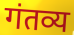
गंतव्य